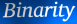
Binarity